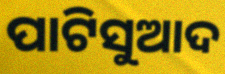
ପାଟିସୁଆଦ